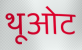
थूओट